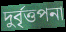
দুর্বৃত্তপনা